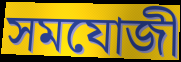
সমযোজী